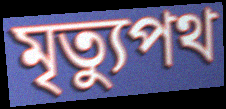
মৃত্যুপথ